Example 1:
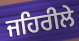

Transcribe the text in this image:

ਜਹਿਰੀਲੇ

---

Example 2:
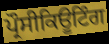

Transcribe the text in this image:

ਪ੍ਰੌਸੀਕਿਊਟਿੰਗ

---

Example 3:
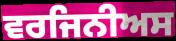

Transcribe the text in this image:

ਵਰਜਿਨੀਅਸ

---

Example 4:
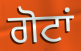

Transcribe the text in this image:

ਗੋਟਾਂ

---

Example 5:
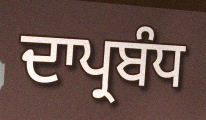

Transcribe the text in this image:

ਦਾਪ੍ਰਬੰਧ